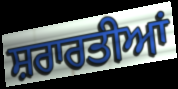
ਸ਼ਰਾਰਤੀਆਂ